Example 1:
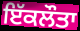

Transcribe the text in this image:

ਇੱਕਲੌਤਾ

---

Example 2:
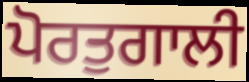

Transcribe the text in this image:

ਪੋਰਤੁਗਾਲੀ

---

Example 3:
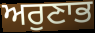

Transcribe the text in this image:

ਅਰੁਣਾਭ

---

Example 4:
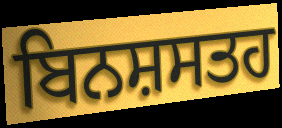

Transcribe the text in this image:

ਬਿਨਸ਼ਸਤਹ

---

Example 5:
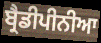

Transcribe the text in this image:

ਬ੍ਰੈਡੀਪੀਨੀਆ